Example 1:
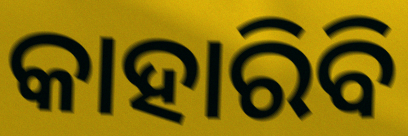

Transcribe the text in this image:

କାହାରିବି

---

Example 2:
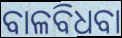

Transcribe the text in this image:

ବାଳବିଧବା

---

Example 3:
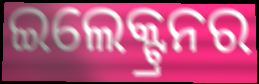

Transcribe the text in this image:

ଇଲେକ୍ଟ୍ରନର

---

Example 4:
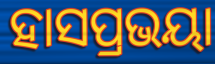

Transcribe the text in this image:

ହାସପ୍ରଭୟା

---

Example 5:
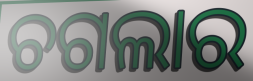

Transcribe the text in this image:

ଚଗଲାର